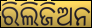
ରିଲିଜିଅନ